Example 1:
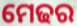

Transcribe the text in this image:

ମେଢର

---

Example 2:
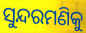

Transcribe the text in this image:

ସୁନ୍ଦରମଣିକୁ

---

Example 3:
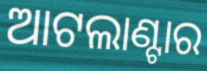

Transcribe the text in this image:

ଆଟଲାଣ୍ଟାର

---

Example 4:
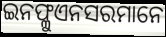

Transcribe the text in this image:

ଇନଫ୍ଳୁଏନସରମାନେ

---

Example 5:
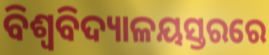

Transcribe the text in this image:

ବିଶ୍ୱବିଦ୍ୟାଳୟସ୍ତରରେ